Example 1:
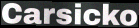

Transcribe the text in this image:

Carsicko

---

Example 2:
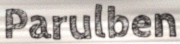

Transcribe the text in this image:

Parulben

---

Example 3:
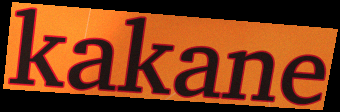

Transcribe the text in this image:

kakane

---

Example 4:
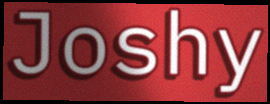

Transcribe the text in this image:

Joshy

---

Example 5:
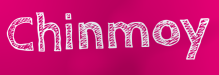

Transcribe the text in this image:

Chinmoy